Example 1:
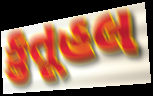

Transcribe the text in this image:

કુતૂહલ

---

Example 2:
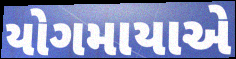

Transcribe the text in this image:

યોગમાયાએ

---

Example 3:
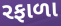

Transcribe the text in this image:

રફાળા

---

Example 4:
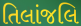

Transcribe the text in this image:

તિલાંજલિ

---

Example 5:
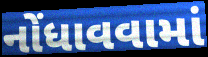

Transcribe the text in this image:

નોંધાવવામાં